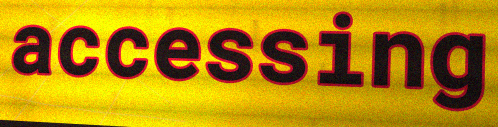
accessing